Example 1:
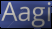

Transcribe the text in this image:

Aagi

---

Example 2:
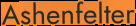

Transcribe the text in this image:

Ashenfelter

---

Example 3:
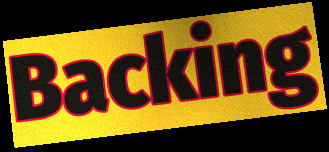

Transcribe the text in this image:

Backing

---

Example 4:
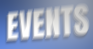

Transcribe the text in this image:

EVENTS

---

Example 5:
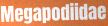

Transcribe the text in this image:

Megapodiidae